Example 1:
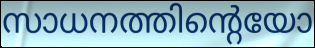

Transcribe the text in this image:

സാധനത്തിന്റെയോ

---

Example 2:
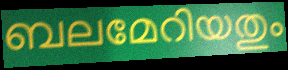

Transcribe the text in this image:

ബലമേറിയതും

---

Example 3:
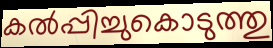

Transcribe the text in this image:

കൽപ്പിച്ചുകൊടുത്തു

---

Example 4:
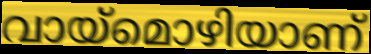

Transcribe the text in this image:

വായ്മൊഴിയാണ്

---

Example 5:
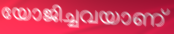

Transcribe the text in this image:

യോജിച്ചവയാണ്